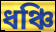
ধঞ্চি